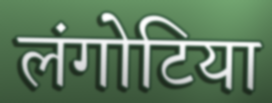
लंगोटिया